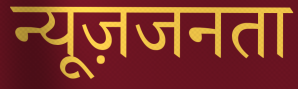
न्यूज़जनता